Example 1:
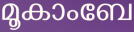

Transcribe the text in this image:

മൂകാംബേ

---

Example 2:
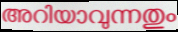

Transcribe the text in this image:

അറിയാവുന്നതും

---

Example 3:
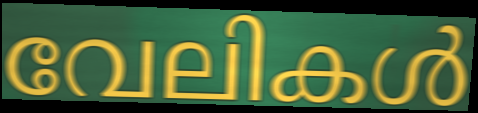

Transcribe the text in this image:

വേലികൾ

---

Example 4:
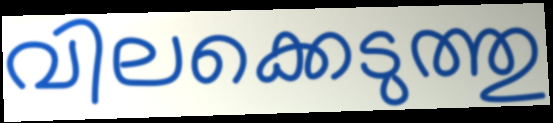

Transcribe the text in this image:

വിലക്കെടുത്തു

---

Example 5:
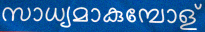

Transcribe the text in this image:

സാധ്യമാകുമ്പോള്